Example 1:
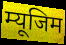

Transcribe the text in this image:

म्यूजिम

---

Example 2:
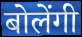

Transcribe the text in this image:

बोलेंगी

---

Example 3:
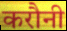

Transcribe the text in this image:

करौनी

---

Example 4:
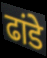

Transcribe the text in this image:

ढांडे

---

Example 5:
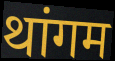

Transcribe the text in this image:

थांगम